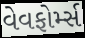
વેવફોર્મ્સ